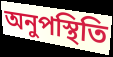
অনুপস্থিতি